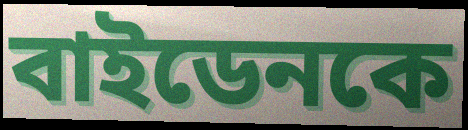
বাইডেনকে